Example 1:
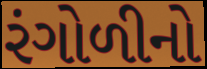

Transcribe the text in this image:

રંગોળીનો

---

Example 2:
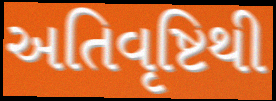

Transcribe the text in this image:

અતિવૃષ્ટિથી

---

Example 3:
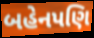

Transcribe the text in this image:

બહેનપણિ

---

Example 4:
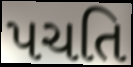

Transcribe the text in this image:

પચતિ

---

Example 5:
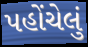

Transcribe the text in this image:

પહોંચેલું